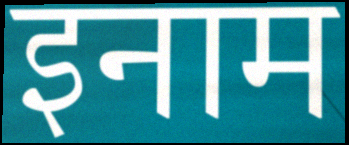
इनाम